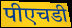
पीएचडी